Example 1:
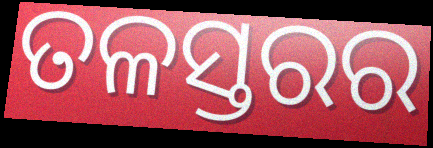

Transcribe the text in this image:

ତଳସ୍ତରର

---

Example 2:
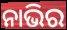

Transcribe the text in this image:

ନାଭିର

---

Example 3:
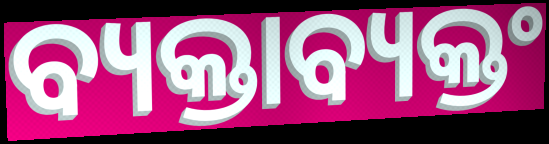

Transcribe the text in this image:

ବ୍ୟକ୍ତାବ୍ୟକ୍ତଂ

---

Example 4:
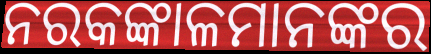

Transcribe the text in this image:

ନରକଙ୍କାଳମାନଙ୍କର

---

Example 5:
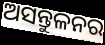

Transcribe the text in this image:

ଅସନ୍ତୁଳନର